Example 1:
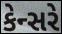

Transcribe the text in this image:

કેન્સરે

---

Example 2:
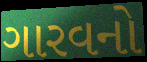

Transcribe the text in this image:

ગારવનો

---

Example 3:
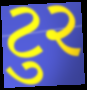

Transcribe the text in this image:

ટુર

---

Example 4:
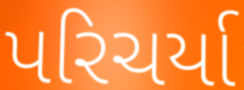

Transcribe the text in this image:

પરિચર્યા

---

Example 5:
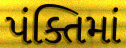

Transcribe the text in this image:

પંક્તિમાં